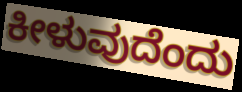
ಕೀಳುವುದೆಂದು